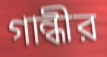
গান্ধীর